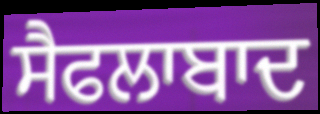
ਸੈਫਲਾਬਾਦ